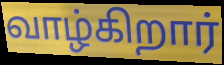
வாழ்கிறார்